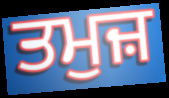
ਤਮੁਜ਼